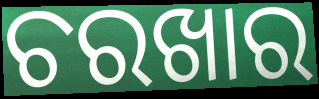
ଚରଖାର